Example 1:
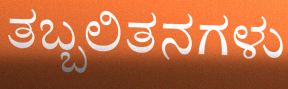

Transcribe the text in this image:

ತಬ್ಬಲಿತನಗಳು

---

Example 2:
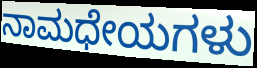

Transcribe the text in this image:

ನಾಮಧೇಯಗಳು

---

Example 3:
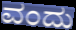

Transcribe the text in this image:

ವಂದು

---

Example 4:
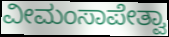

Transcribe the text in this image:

ವೀಮಂಸಾಪೇತ್ವಾ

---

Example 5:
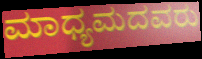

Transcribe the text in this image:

ಮಾಧ್ಯಮದವರು